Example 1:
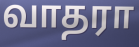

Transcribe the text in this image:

வாதரா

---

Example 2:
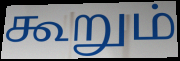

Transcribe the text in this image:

கூறும்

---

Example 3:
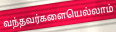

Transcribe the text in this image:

வந்தவர்களையெல்லாம்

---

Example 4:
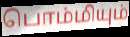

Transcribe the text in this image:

பொம்மியும்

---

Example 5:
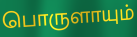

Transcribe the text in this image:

பொருளாயும்